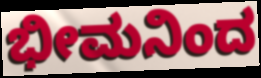
ಭೀಮನಿಂದ